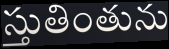
స్తుతింతును